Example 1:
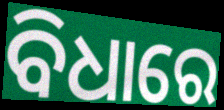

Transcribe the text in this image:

ବିଧାରେ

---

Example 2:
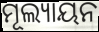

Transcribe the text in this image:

ମୂଲ୍ୟାୟନ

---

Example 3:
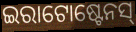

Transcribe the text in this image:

ଇରାଟୋଷ୍ଟେନସ୍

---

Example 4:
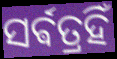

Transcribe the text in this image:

ସର୍ଵତ୍ରହିଁ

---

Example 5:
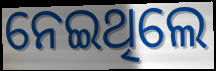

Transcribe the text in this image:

ନେଇଥିଲେ